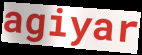
agiyar